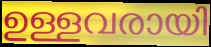
ഉള്ളവരായി